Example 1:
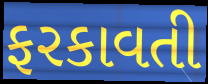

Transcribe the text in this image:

ફરકાવતી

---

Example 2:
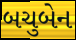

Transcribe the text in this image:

બચુબેન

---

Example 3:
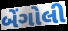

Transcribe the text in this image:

બેંગોલી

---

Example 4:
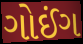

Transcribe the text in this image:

ગોઈંગ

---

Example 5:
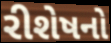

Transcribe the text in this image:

રીશેષનો